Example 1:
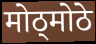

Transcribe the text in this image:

मोठ्मोठे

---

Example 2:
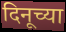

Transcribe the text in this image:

दिनूच्या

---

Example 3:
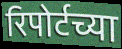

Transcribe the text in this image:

रिपोर्टच्या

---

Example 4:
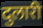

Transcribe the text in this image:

दुलारी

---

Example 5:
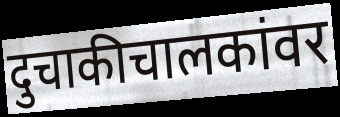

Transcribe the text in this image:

दुचाकीचालकांवर